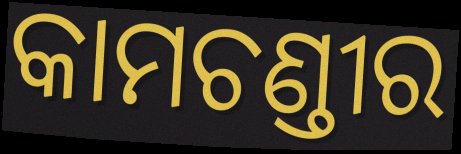
କାମଚଣ୍ଡୀର